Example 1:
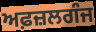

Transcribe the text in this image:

ਅਫ਼ਜ਼ਲਗੰਜ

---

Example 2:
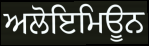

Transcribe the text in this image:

ਅਲੋਇਮਿਊਨ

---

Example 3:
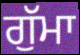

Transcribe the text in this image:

ਗੁੱਮਾ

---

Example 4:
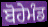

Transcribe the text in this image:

ਬੋਹੇਮੰਡ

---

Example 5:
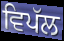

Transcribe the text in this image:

ਵਿਪੱਲ